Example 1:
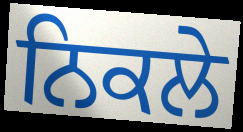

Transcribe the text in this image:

ਨਿਕਲੇ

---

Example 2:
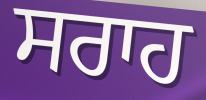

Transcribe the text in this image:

ਸਰਾਹ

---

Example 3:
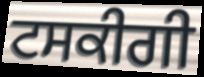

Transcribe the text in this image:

ਟਸਕੀਗੀ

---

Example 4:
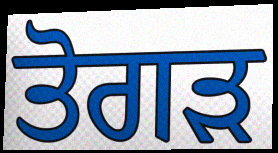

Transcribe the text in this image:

ਤੋਗੜ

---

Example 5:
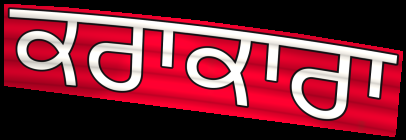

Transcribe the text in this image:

ਕਰਾਕਾਰਾ